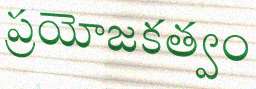
ప్రయోజకత్వం